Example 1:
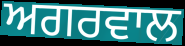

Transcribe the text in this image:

ਅਗਰਵਾਲ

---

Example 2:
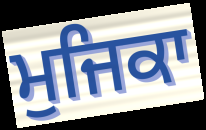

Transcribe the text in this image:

ਮੁਜਿਕਾ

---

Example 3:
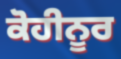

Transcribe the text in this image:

ਕੋਹੀਨੂਰ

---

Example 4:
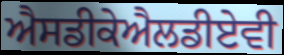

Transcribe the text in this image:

ਐਸਡੀਕੇਐਲਡੀਏਵੀ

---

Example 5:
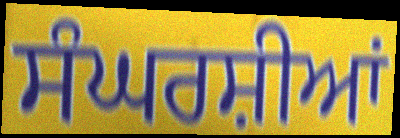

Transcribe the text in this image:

ਸੰਘਰਸ਼ੀਆਂ